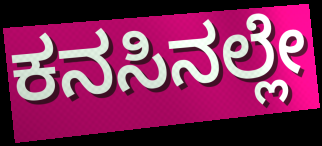
ಕನಸಿನಲ್ಲೇ